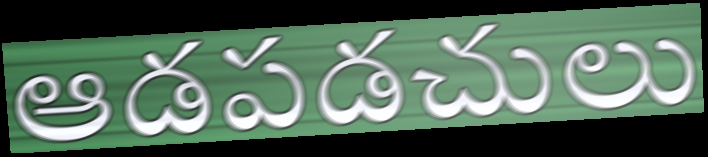
ఆడపడచులు